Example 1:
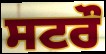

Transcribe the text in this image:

ਸਟਰੌ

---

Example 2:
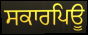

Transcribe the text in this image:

ਸਕਾਰਪਿਊ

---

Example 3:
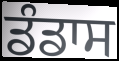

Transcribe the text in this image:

ਡੰਡਾਸ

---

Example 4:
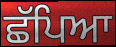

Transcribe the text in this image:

ਛੱਪਿਆ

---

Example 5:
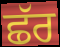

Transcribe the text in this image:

ਛੱਰ